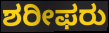
ಶರೀಫರು